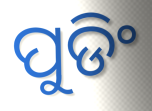
ପୁଡିଂ